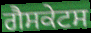
ਗੈਸਕੇਟਸ